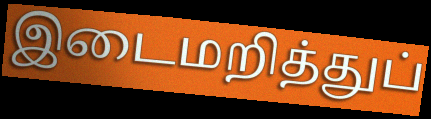
இடைமறித்துப்